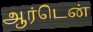
ஆர்டென்